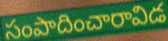
సంపాదించారావిడ